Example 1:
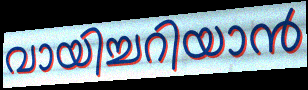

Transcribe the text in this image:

വായിച്ചറിയാൻ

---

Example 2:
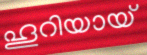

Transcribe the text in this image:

ഹൂറിയായ്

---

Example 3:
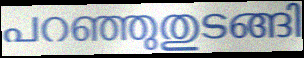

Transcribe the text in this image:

പറഞ്ഞുതുടങ്ങി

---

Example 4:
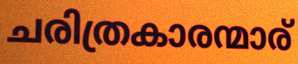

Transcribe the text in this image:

ചരിത്രകാരന്മാര്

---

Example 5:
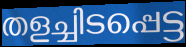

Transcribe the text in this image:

തളച്ചിടപ്പെട്ട